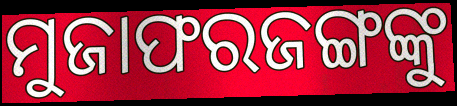
ମୁଜାଫରଜଙ୍ଗଙ୍କୁ